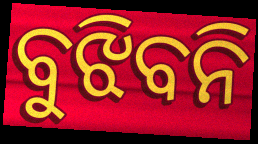
ବୁଝିବନି